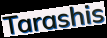
Tarashis